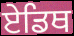
ਏਡਿਥ